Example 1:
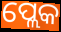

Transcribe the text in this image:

ପ୍ଲେକ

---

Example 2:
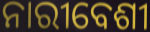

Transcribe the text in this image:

ନାରୀବେଶୀ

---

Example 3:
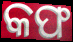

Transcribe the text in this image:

କଫ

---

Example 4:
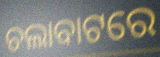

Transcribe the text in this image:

ଚଲାବାଟରେ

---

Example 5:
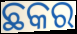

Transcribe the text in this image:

ଛକର